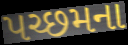
પચ્છમના